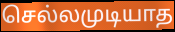
செல்லமுடியாத